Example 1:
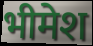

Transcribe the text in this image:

भीमेश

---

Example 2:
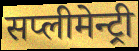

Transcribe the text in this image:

सप्लीमेन्ट्री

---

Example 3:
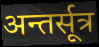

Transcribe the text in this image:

अन्तर्सूत्र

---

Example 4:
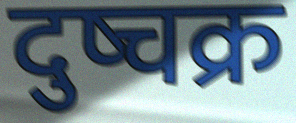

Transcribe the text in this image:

दुष्चक्र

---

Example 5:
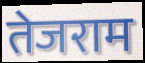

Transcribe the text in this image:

तेजराम